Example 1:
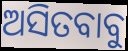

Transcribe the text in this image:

ଅସିତବାବୁ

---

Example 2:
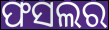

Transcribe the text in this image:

ଫସଲର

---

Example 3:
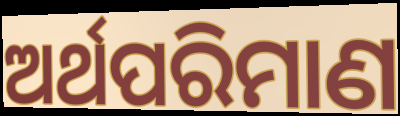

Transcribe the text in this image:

ଅର୍ଥପରିମାଣ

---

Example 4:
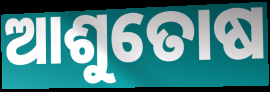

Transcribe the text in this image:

ଆଶୁତୋଷ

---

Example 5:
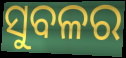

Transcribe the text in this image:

ସୁବଳର